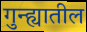
गुन्ह्यातील